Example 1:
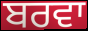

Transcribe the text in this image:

ਬਰਵਾ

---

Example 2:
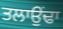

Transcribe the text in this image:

ਤਲਾਉਂਢਾ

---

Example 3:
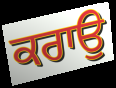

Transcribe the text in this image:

ਕਰਾਉ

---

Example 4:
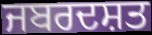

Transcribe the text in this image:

ਜਬਰਦਸ਼ਤ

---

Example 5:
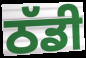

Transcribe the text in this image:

ਠੱਡੀ